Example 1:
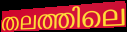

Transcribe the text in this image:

തലത്തിലെ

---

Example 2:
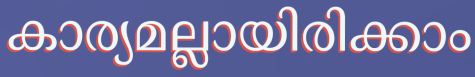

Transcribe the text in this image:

കാര്യമല്ലായിരിക്കാം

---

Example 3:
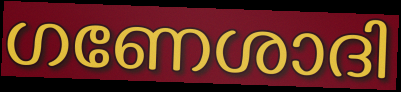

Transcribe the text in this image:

ഗണേശാദി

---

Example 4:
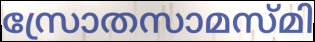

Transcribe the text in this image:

സ്രോതസാമസ്മി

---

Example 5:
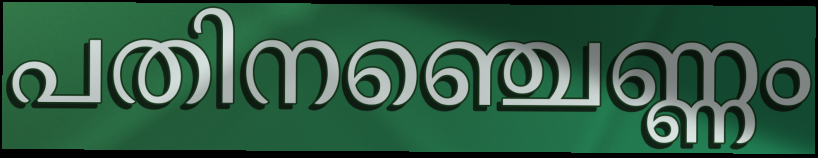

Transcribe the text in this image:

പതിനഞ്ചെണ്ണം